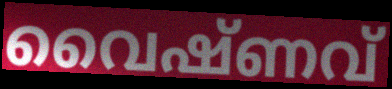
വൈഷ്ണവ്